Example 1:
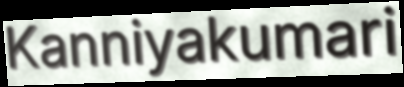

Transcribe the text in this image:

Kanniyakumari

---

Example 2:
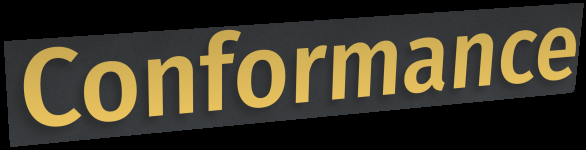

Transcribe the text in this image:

Conformance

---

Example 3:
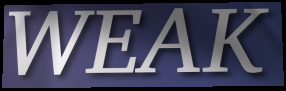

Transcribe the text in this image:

WEAK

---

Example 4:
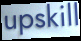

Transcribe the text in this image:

upskill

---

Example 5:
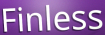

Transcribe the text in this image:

Finless